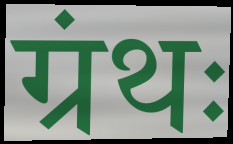
ग्रंथः